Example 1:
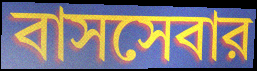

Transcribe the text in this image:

বাসসেবার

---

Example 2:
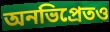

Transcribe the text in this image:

অনভিপ্রেতও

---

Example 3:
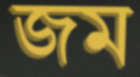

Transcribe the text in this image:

জম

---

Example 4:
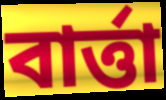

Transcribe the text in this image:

বার্ত্তা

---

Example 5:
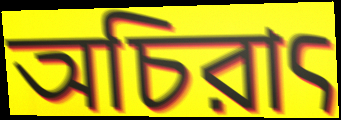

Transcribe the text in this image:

অচিরাৎ